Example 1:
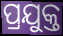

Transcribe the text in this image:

ପ୍ରଯୁକ୍ତ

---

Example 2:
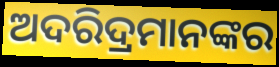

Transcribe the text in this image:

ଅଦରିଦ୍ରମାନଙ୍କର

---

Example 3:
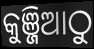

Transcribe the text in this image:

କୁଞ୍ଜିଆଠୁ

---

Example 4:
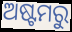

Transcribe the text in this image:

ଅଷ୍ଟମରୁ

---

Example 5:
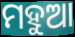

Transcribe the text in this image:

ମହୁଆ